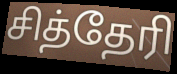
சித்தேரி